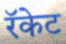
रॅकेट